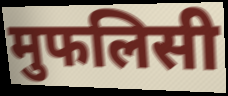
मुफलिसी